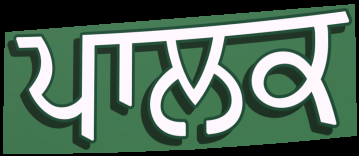
ਪਾਲਕ